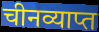
चीनव्याप्त